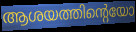
ആശയത്തിന്റെയോ